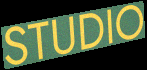
STUDIO